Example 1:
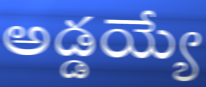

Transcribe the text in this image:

అడ్డయ్యే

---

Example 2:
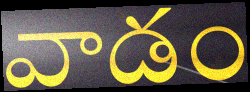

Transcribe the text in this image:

వాడం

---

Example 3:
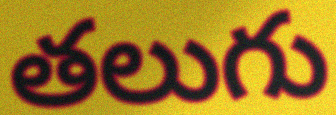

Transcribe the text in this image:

తలుగు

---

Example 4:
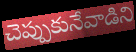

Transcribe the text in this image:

చెప్పుకునేవాడిని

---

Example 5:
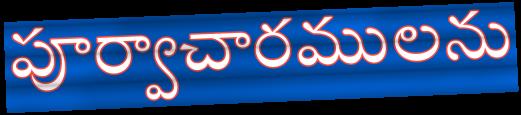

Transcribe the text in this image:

పూర్వాచారములను